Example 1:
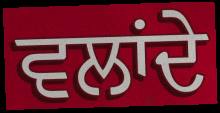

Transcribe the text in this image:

ਵਲਾਂਦੇ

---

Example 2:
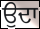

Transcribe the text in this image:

ਉਦਾ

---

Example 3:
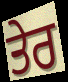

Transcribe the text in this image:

ਤੇਰ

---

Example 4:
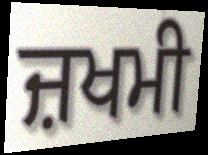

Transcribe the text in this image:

ਜ਼ਖਮੀ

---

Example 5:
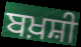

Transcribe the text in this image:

ਬਖ਼ਸ਼ੀ